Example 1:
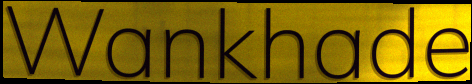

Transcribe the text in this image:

Wankhade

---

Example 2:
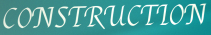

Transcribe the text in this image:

CONSTRUCTION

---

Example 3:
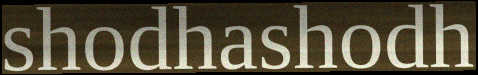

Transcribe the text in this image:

shodhashodh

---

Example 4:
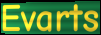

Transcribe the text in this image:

Evarts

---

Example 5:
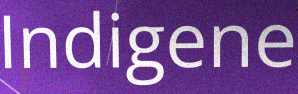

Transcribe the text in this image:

Indigene